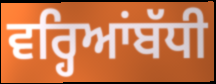
ਵਰ੍ਹਿਆਂਬੱਧੀ